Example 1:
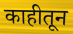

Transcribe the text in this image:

काहीतून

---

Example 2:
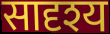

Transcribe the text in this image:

सादृश्य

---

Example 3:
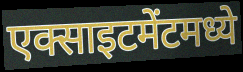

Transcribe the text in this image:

एक्साइटमेंटमध्ये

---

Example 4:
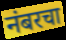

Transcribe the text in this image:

नंबरचा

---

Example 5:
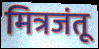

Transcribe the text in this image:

मित्रजंतू